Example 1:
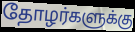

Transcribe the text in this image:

தோழர்களுக்கு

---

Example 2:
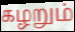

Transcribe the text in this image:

கழறும்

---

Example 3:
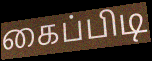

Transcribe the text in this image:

கைப்பிடி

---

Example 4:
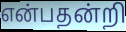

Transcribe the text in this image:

என்பதன்றி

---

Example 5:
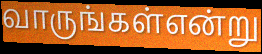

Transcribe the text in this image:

வாருங்கள்என்று